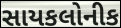
સાયકલોનીક